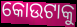
କୋଉଟାକୁ